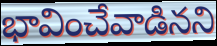
భావించేవాడినని